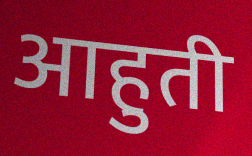
आहुती